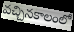
వచ్చినకాలంలో